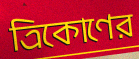
ত্রিকোণের